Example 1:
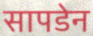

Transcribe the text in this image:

सापडेन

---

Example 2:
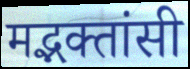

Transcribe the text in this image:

मद्भक्तांसी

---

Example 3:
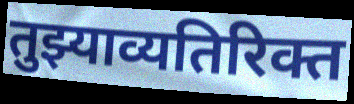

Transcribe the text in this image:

तुझ्याव्यतिरिक्त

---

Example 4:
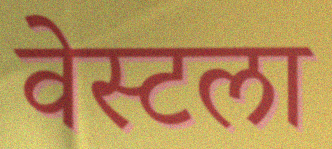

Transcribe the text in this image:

वेस्टला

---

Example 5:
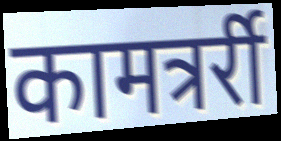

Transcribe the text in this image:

कामत्रर्री